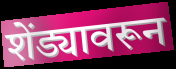
शेंड्यावरून